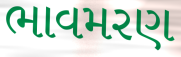
ભાવમરણ